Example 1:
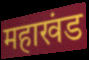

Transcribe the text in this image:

महाखंड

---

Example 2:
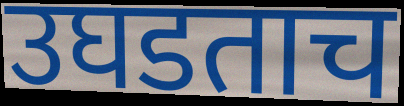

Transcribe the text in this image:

उघडताच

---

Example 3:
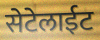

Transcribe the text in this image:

सेटेलाईट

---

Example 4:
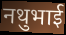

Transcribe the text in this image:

नथुभाई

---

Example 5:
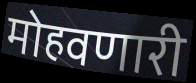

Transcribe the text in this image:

मोहवणारी